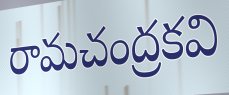
రామచంద్రకవి